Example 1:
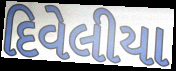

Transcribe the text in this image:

દિવેલીયા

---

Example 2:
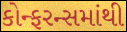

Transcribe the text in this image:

કોન્ફરન્સમાંથી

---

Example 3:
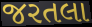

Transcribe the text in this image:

જરતલા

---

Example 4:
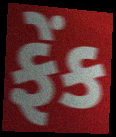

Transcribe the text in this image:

ફેંક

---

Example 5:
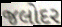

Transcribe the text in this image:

જલોદર